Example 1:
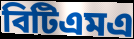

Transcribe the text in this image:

বিটিএমএ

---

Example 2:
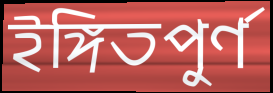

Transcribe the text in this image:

ইঙ্গিতপুর্ণ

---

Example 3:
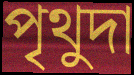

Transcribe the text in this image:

পৃথুদা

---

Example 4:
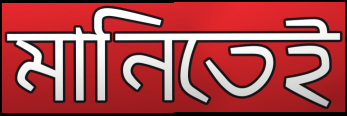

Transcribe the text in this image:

মানিতেই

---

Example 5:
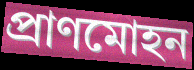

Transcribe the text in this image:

প্রাণমোহন